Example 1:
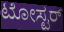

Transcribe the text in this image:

ಟೋಸ್ಟರ್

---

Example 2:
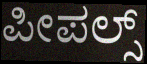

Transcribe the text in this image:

ಪೀಪಲ್ಸ್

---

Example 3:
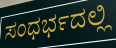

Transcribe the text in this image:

ಸಂಧರ್ಭದಲ್ಲಿ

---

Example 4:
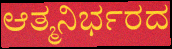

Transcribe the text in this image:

ಆತ್ಮನಿರ್ಭರದ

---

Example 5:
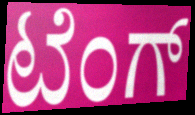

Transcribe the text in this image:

ಟೆಂಗ್